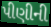
પીણીની